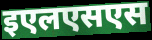
इएलएसएस